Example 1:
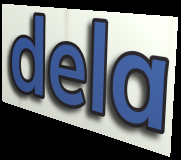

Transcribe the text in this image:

dela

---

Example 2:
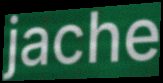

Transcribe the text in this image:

jache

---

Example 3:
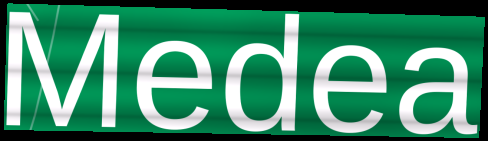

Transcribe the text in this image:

Medea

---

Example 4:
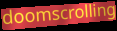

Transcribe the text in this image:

doomscrolling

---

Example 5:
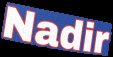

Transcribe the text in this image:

Nadir